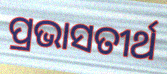
ପ୍ରଭାସତୀର୍ଥ